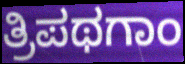
ತ್ರಿಪಥಗಾಂ